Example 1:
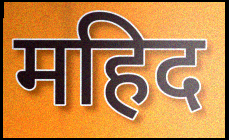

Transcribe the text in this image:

महिद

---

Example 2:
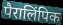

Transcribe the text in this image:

पैरालिंपिक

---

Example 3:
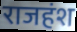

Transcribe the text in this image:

राजहंश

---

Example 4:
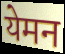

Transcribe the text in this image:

येमन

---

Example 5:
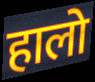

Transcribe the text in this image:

हालो